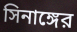
সিনাঙ্গের